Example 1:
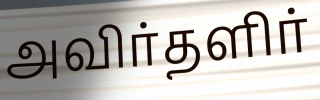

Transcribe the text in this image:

அவிர்தளிர்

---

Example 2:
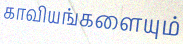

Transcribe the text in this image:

காவியங்களையும்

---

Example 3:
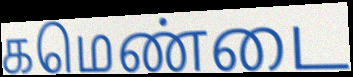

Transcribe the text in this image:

கமெண்டை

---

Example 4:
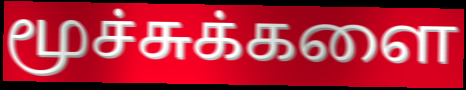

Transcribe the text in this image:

மூச்சுக்களை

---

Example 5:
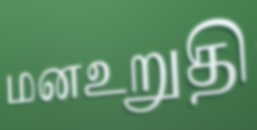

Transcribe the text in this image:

மனஉறுதி